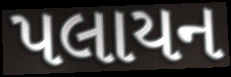
પલાયન